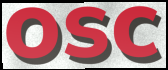
osc